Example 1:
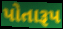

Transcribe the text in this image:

પોતારૂપ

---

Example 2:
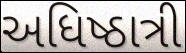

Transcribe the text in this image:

અધિષ્ઠાત્રી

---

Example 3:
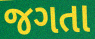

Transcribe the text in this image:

જગતા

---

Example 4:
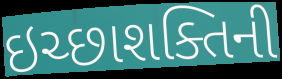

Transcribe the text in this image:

ઇચ્છાશક્તિની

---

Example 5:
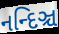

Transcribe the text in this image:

નન્દિઞ્ચ